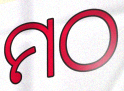
ମଠ